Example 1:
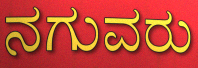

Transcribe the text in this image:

ನಗುವರು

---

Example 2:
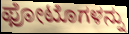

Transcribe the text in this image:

ಫೋಟೊಗಳನ್ನು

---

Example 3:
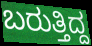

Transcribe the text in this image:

ಬರುತ್ತಿದ್ದ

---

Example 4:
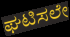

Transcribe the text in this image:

ಘಟಿಸಲೇ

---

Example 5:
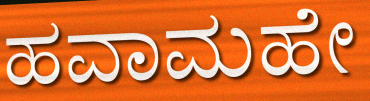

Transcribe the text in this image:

ಹವಾಮಹೇ